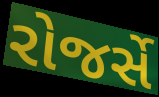
રોજર્સે